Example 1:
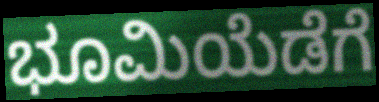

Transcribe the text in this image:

ಭೂಮಿಯೆಡೆಗೆ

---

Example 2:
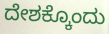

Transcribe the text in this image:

ದೇಶಕ್ಕೊಂದು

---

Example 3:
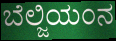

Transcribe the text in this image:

ಬೆಲ್ಜಿಯಂನ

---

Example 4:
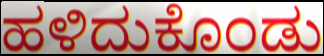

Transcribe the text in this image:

ಹಳಿದುಕೊಂಡು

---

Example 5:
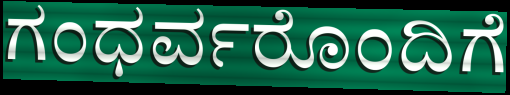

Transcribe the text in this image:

ಗಂಧರ್ವರೊಂದಿಗೆ